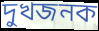
দুখজনক